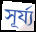
সূর্য্য